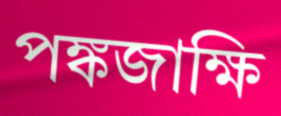
পঙ্কজাক্ষি